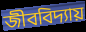
জীববিদ্যায়